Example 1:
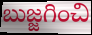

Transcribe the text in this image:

బుజ్జగించి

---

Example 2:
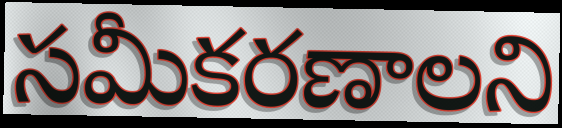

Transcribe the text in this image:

సమీకరణాలని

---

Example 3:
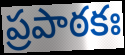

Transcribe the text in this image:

ప్రపాఠకః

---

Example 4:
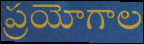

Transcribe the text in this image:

ప్రయోగాల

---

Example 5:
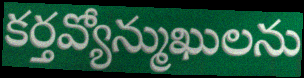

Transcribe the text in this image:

కర్తవ్యోన్ముఖులను